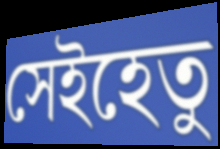
সেইহেতু